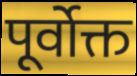
पूर्वोक्त